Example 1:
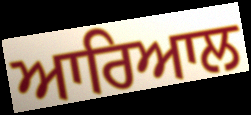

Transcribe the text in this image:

ਆਰਿਆਲ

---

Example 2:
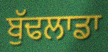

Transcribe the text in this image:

ਬੁੱਢਲਾਡਾ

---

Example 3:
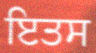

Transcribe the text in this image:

ਇਤਸ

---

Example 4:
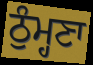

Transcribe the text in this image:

ਠੁੰਮ੍ਹਣਾ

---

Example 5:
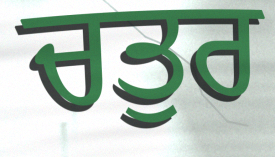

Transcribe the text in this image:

ਚਤੁਰ